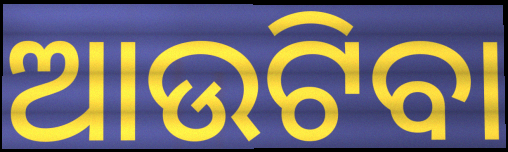
ଆଉଟିବା